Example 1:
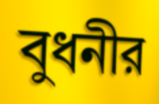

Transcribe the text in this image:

বুধনীর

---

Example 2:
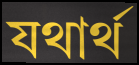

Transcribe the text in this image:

যথার্থ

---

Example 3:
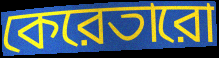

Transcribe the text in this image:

কেরেতারো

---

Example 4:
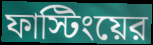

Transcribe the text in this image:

ফাস্টিংয়ের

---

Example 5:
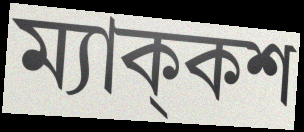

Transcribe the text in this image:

ম্যাক্‌কশ